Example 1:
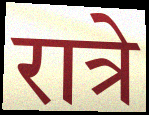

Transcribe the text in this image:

रात्रे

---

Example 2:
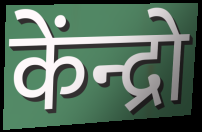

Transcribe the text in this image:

केंन्द्रो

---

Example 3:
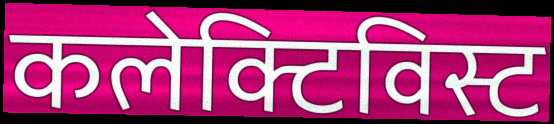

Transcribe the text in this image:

कलेक्टिविस्ट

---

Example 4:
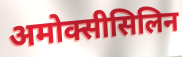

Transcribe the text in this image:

अमोक्सीसिलिन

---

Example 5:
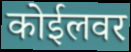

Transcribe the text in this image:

कोईलवर